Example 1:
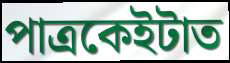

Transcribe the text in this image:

পাত্ৰকেইটাত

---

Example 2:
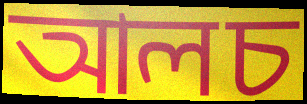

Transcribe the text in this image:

আলচ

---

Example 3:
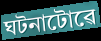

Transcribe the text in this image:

ঘটনাটোৱে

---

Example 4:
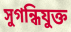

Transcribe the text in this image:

সুগন্ধিযুক্ত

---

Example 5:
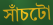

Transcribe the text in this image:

সাঁচটো